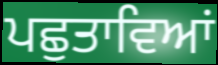
ਪਛੁਤਾਵਿਆਂ